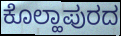
ಕೊಲ್ಹಾಪುರದ